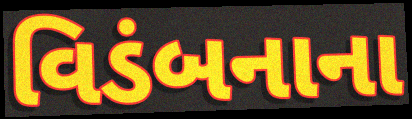
વિડંબનાના